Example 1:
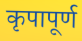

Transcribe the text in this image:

कृपापूर्ण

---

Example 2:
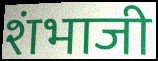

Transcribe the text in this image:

शंभाजी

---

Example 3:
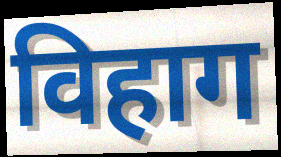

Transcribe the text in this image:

विहाग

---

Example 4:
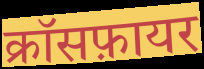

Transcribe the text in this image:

क्रॉसफ़ायर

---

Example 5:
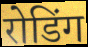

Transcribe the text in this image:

रोडिंग